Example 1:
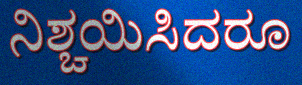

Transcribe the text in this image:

ನಿಶ್ಚಯಿಸಿದರೂ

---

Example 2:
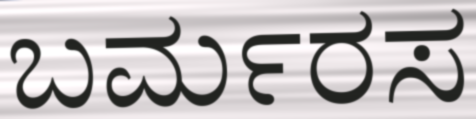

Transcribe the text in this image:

ಬರ್ಮರಸ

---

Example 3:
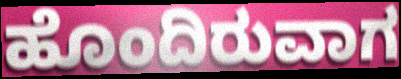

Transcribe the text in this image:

ಹೊಂದಿರುವಾಗ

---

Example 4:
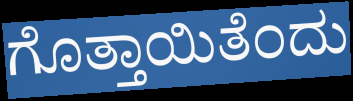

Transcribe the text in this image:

ಗೊತ್ತಾಯಿತೆಂದು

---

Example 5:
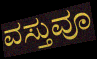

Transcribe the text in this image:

ವಸ್ತುವೂ